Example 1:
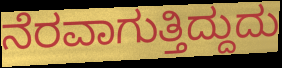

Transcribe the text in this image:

ನೆರವಾಗುತ್ತಿದ್ದುದು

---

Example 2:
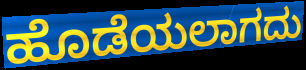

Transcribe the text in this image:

ಹೊಡೆಯಲಾಗದು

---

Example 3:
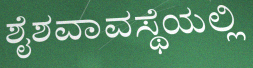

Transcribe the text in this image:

ಶೈಶವಾವಸ್ಥೆಯಲ್ಲಿ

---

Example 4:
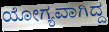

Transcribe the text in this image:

ಯೋಗ್ಯವಾಗಿದ್ದ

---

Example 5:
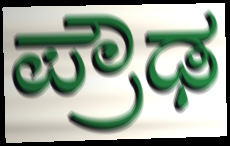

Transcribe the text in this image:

ಪ್ರೌಢ